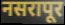
नसरापूर